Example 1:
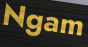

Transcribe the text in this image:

Ngam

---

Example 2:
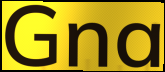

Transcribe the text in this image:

Gna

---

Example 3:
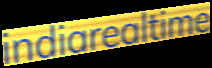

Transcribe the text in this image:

indiarealtime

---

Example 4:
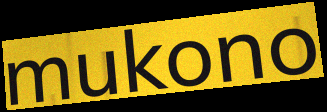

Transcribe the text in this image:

mukono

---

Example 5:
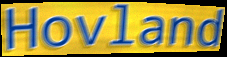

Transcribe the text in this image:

Hovland